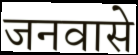
जनवासे